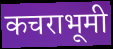
कचराभूमी